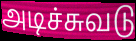
அடிச்சுவடு